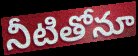
నీటితోనూ